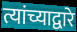
त्यांच्याद्वारे